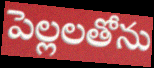
పెల్లలతోను